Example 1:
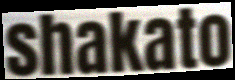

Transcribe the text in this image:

shakato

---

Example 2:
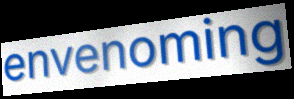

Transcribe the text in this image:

envenoming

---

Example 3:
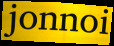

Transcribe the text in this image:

jonnoi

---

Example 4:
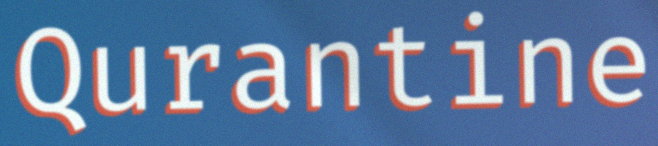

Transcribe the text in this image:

Qurantine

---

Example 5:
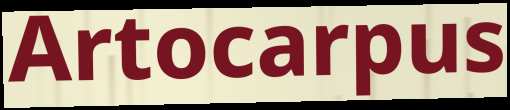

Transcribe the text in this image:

Artocarpus